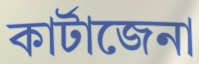
কাৰ্টাজেনা